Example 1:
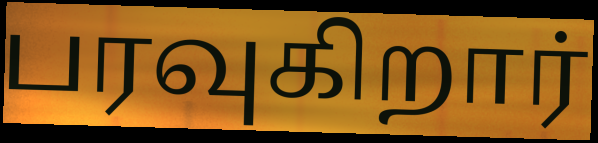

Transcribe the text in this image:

பரவுகிறார்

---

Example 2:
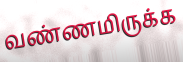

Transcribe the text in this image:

வண்ணமிருக்க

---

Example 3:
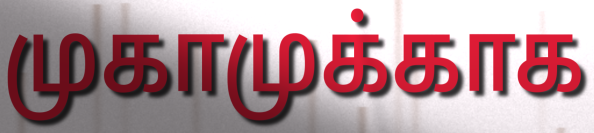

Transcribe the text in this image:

முகாமுக்காக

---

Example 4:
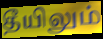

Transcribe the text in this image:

தீயிலும்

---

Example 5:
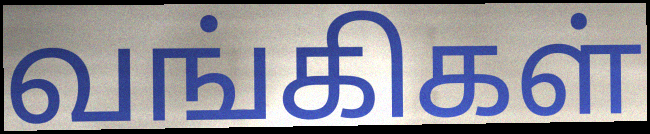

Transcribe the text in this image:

வங்கிகள்